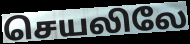
செயலிலே